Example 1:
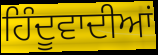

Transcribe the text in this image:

ਹਿੰਦੂਵਾਦੀਆਂ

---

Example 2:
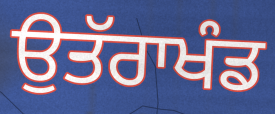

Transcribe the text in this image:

ਉਤੱਰਾਖੰਡ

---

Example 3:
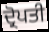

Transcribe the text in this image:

ਦ੍ਰੋਪਤੀ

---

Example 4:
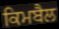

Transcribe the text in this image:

ਕਿਮਬੈਲ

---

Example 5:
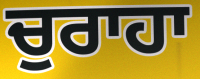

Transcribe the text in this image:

ਚੁਰਾਹਾ